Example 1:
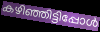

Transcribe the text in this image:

കഴിഞ്ഞിട്ടിപ്പോൾ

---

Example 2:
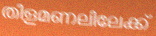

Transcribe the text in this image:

തിളമണലിലേക്ക്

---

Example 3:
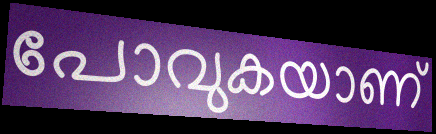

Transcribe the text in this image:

പോവുകയാണ്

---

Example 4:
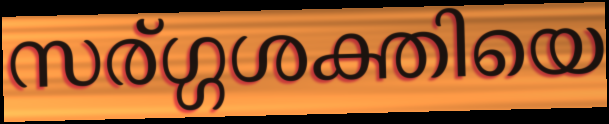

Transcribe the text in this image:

സര്ഗ്ഗശക്തിയെ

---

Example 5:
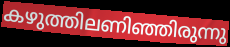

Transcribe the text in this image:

കഴുത്തിലണിഞ്ഞിരുന്നു